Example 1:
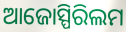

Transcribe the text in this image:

ଆଜୋସ୍ପିରିଲମ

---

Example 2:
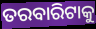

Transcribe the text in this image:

ତରବାରିଟାକୁ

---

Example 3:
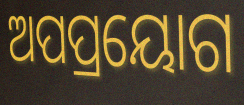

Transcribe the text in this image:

ଅପପ୍ରୟୋଗ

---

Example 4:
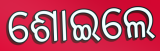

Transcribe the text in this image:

ଶୋଇଲେ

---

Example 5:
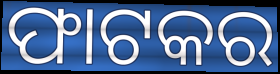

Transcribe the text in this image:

ଫାଟକର